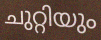
ചുറ്റിയും